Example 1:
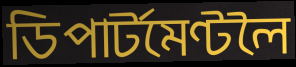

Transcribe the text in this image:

ডিপাৰ্টমেণ্টলৈ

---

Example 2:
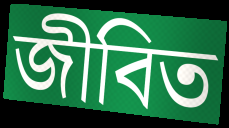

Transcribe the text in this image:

জীবিত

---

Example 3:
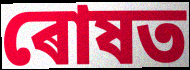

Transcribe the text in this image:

ৰোষত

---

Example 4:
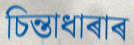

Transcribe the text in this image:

চিন্তাধাৰাৰ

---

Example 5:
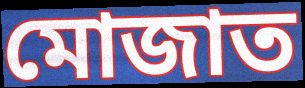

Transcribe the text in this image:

মোজাত